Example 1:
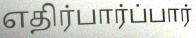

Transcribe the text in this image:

எதிர்பார்ப்பார்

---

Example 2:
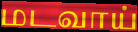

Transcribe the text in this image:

மடவாய்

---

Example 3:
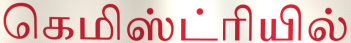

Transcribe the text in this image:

கெமிஸ்ட்ரியில்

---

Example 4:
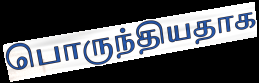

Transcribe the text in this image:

பொருந்தியதாக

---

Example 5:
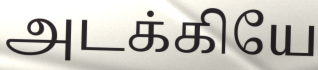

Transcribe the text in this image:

அடக்கியே